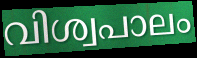
വിശ്വപാലം